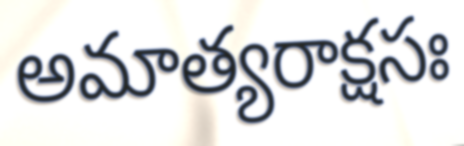
అమాత్యరాక్షసః